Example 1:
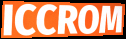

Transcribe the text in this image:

ICCROM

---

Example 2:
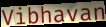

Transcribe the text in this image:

Vibhavan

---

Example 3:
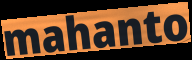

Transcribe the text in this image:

mahanto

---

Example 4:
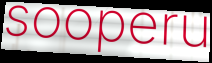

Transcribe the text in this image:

sooperu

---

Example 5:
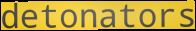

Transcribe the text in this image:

detonators